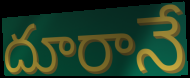
దూరానే